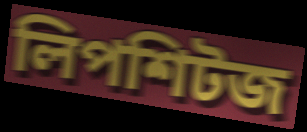
লিপশিটজ